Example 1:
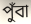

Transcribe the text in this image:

পুঁবা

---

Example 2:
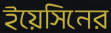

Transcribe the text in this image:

ইয়েসিনের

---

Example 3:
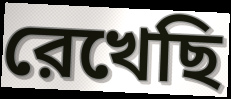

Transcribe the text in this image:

রেখেছি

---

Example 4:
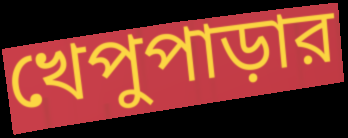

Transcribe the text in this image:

খেপুপাড়ার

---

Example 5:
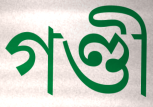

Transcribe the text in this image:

গণ্ডী